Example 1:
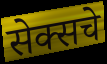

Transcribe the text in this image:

सेक्सचे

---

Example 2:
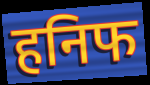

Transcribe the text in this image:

हनिफ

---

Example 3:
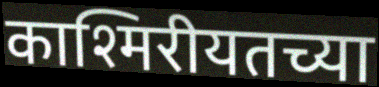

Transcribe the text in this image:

काश्मिरीयतच्या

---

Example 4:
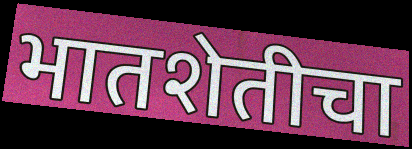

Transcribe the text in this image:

भातशेतीचा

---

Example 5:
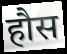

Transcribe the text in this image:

हौस